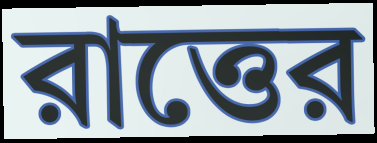
রাত্তের